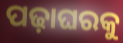
ପଢ଼ାଘରକୁ